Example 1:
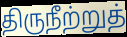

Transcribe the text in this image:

திருநீற்றுத்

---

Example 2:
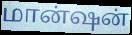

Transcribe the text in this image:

மான்ஷன்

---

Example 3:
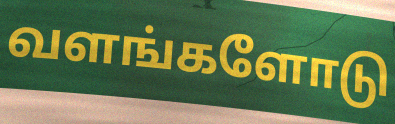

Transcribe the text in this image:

வளங்களோடு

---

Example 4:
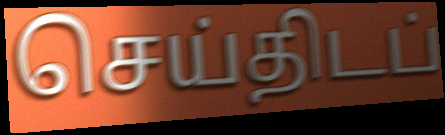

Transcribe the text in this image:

செய்திடப்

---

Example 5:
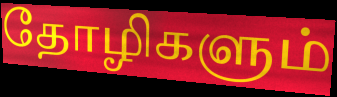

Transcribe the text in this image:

தோழிகளும்